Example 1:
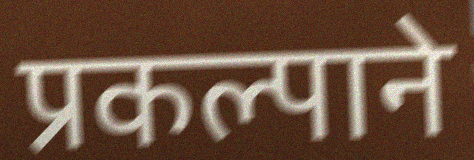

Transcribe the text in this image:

प्रकल्पाने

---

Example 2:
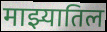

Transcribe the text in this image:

माझ्यातिल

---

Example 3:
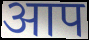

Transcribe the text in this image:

आप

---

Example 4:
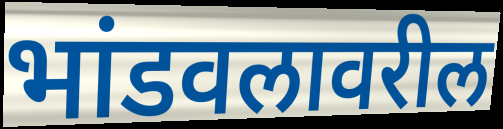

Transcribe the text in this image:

भांडवलावरील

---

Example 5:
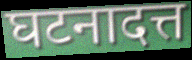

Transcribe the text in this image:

घटनादत्त